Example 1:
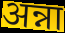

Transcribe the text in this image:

अन्ना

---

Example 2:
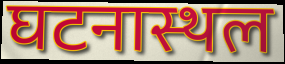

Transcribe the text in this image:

घटनास्थल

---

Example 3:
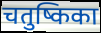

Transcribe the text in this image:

चतुष्किका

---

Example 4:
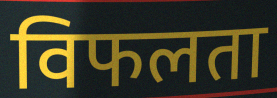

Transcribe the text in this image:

विफलता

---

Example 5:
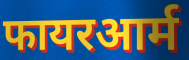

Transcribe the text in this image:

फायरआर्म